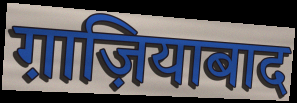
ग़ाज़ियाबाद